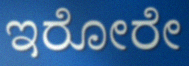
ಇರೋರೇ